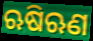
ଋଷିଋଣ